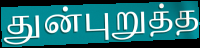
துன்புறுத்த